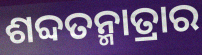
ଶବ୍ଦତନ୍ମାତ୍ରାର